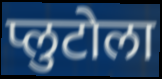
प्लुटोला